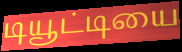
டியூட்டியை